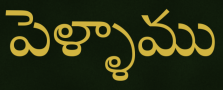
పెళ్ళాము